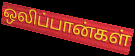
ஒலிப்பான்கள்